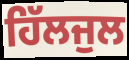
ਹਿੱਲਜੁਲ